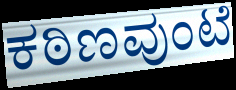
ಕಠಿಣವುಂಟೆ